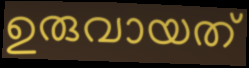
ഉരുവായത്